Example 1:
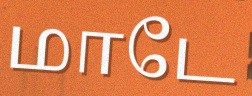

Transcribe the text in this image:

மாடே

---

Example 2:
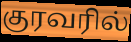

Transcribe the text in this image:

குரவரில்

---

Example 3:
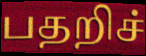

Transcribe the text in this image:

பதறிச்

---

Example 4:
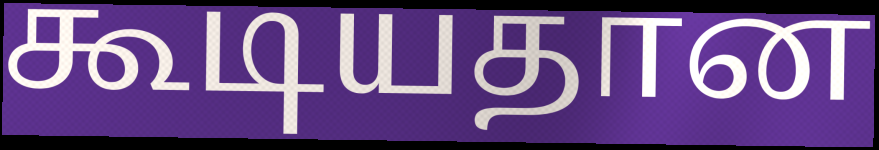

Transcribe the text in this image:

கூடியதான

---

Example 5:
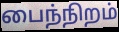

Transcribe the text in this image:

பைந்நிறம்